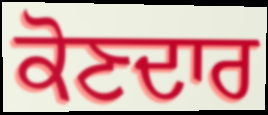
ਕੋਣਦਾਰ